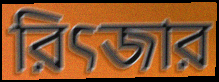
রিৎজার